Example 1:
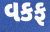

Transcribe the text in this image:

વકફ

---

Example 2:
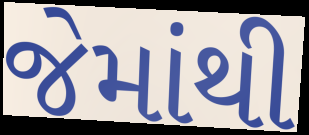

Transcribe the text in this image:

જેમાંથી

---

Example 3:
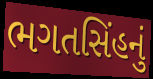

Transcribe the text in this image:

ભગતસિંહનું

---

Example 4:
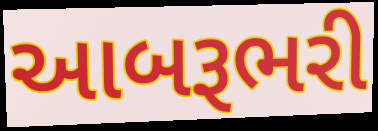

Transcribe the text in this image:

આબરૂભરી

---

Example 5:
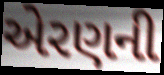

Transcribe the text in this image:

એરણની